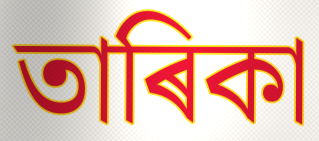
তাৰিকা